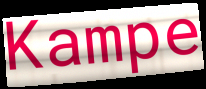
Kampe